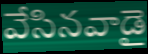
వేసినవాడై